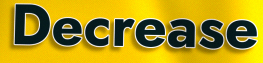
Decrease